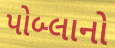
પોબ્લાનો